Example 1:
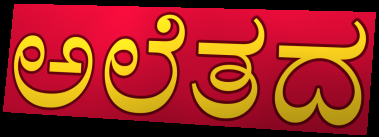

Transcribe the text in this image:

ಅಲೆತದ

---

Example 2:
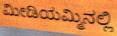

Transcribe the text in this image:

ಮೀಡಿಯಮ್ಮಿನಲ್ಲಿ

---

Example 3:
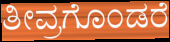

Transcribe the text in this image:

ತೀವ್ರಗೊಂಡರೆ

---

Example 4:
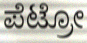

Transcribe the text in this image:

ಪೆಟ್ರೋ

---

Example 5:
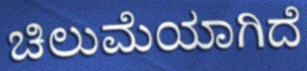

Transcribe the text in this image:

ಚಿಲುಮೆಯಾಗಿದೆ